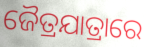
ଜୈତ୍ରଯାତ୍ରାରେ